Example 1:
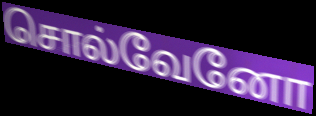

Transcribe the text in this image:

சொல்வேனோ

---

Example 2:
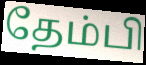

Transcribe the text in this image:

தேம்பி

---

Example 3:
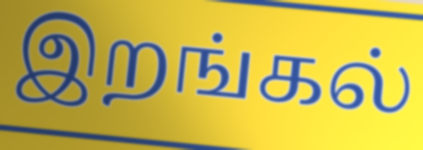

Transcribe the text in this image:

இறங்கல்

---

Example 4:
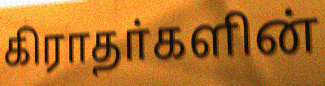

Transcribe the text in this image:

கிராதர்களின்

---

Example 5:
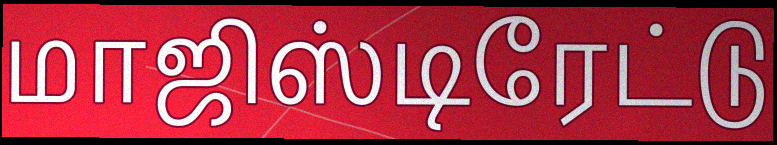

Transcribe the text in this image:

மாஜிஸ்டிரேட்டு